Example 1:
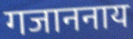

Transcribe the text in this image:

गजाननाय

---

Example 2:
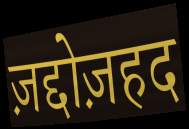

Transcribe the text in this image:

ज़द्दोज़हद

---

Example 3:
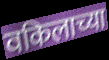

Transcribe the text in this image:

वकिलाच्या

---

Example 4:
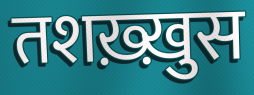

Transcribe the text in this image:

तशख़्ख़ुस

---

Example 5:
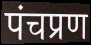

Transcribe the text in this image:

पंचप्रण